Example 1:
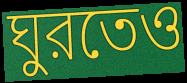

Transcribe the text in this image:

ঘুরতেও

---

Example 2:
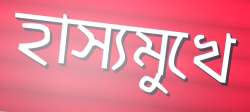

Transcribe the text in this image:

হাস্যমুখে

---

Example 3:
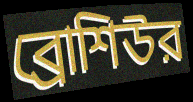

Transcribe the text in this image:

ব্রোশিউর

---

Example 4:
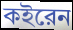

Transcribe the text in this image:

কইরেন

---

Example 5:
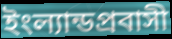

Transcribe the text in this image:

ইংল্যান্ডপ্রবাসী